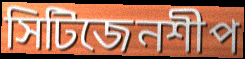
সিটিজেনশীপ